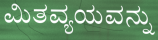
ಮಿತವ್ಯಯವನ್ನು